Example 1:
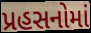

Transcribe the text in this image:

પ્રહસનોમાં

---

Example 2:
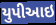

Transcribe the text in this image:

યુપીઆઇ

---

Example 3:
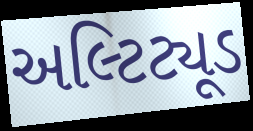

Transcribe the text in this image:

અલ્ટિટ્યૂડ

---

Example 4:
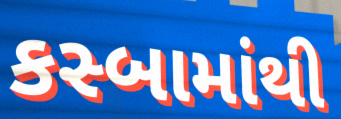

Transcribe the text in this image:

કસ્બામાંથી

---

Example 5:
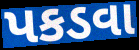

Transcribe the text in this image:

પકડવા